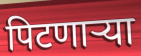
पिटणाऱ्या